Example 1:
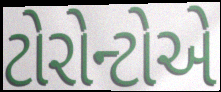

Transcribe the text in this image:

ટોરોન્ટોએ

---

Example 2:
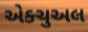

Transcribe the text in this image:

એક્ચુઅલ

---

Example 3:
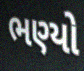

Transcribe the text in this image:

ભણ્યો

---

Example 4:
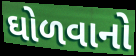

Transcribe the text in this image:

ઘોળવાનો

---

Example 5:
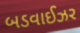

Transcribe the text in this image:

બડવાઈઝર